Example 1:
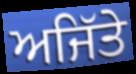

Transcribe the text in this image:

ਅਜਿੱਤੇ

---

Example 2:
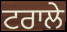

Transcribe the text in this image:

ਟਰਾਲੇ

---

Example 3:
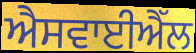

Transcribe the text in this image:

ਐਸਵਾਈਐੱਲ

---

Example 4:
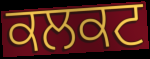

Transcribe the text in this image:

ਕਲਕਟ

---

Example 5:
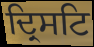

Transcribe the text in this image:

ਦ੍ਰਿਸਟਿ